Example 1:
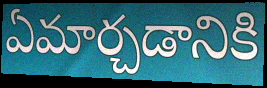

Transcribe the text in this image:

ఏమార్చడానికి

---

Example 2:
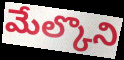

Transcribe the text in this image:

మేల్కొని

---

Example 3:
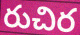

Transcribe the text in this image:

రుచిర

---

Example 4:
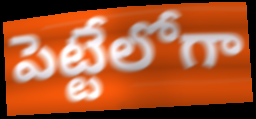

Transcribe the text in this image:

పెట్టేలోగా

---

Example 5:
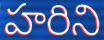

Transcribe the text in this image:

హరిని